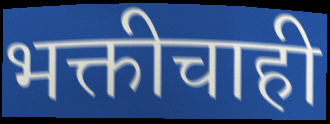
भक्तीचाही